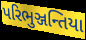
પરિભુઞ્જન્તિયા